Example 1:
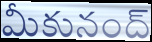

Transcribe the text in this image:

మీకునంద్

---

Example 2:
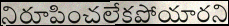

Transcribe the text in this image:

నిరూపించలేకపోయారని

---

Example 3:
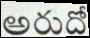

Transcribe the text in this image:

అరుదో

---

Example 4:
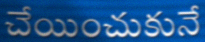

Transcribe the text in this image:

చేయించుకునే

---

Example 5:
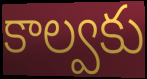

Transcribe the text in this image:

కాల్వకు